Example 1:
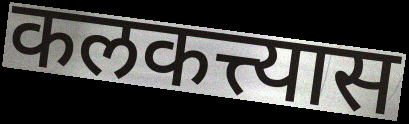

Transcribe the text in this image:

कलकत्त्यास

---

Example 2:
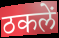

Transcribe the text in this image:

ठकलें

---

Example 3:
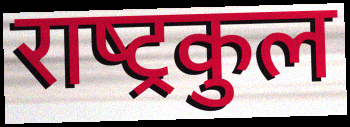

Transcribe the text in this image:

राष्ट्रकुल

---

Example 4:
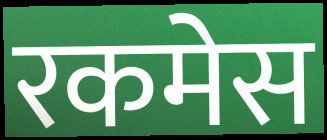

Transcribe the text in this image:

रकमेस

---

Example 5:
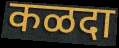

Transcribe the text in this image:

कळदा